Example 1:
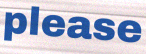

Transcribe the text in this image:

please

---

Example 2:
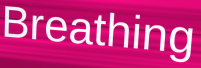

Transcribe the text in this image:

Breathing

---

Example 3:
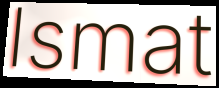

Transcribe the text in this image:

Ismat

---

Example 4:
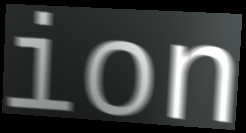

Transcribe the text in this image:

ion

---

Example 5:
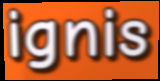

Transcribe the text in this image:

ignis